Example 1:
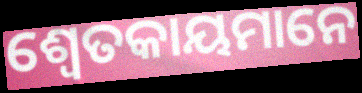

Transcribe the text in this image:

ଶ୍ୱେତକାୟମାନେ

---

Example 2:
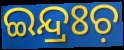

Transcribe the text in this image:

ଇନ୍ଦ୍ରଃଚ଼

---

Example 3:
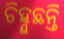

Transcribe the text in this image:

ଚିହ୍ନୁଛନ୍ତି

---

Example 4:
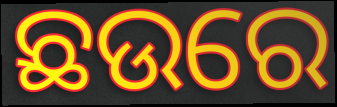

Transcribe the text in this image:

ଛଉରେ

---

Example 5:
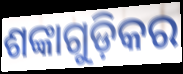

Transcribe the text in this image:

ଶଙ୍କାଗୁଡ଼ିକର